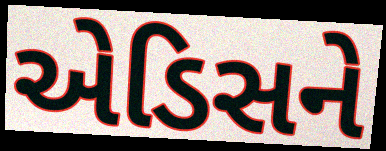
એડિસને